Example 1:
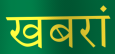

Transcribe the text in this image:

खबरां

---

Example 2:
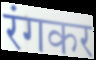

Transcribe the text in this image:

रंगकर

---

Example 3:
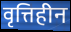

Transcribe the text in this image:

वृत्तिहीन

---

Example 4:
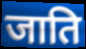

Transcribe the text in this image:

जाति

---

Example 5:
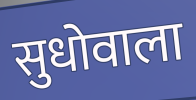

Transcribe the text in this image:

सुधोवाला